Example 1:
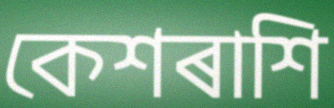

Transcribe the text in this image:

কেশৰাশি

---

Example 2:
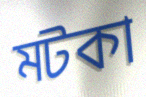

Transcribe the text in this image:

মটকা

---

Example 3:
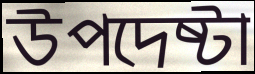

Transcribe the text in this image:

উপদেষ্টা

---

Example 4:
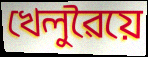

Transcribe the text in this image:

খেলুৱৈয়ে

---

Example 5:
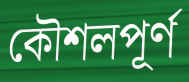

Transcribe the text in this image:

কৌশলপূৰ্ণ